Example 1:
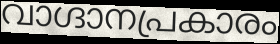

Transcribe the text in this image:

വാഗ്ദാനപ്രകാരം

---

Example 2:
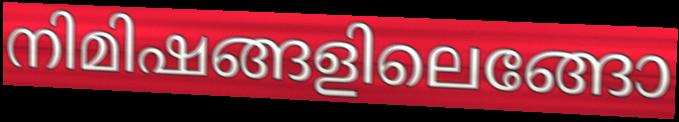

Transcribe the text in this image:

നിമിഷങ്ങളിലെങ്ങോ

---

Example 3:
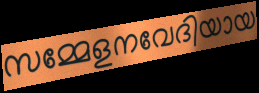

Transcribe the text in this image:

സമ്മേളനവേദിയായ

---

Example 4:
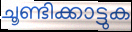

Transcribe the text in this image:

ചൂണ്ടിക്കാട്ടുക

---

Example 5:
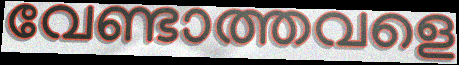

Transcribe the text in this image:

വേണ്ടാത്തവളെ